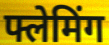
फ्लेमिंग